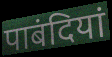
पाबंदियां